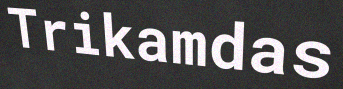
Trikamdas